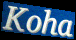
Koha